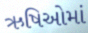
ઋષિઓમાં